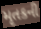
મૃતકની